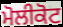
ਮੋਲੀਕੋਟ